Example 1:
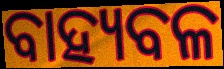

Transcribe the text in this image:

ବାହ୍ୟବଳ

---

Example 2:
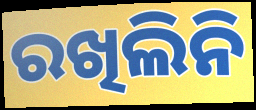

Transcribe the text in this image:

ରଖିଲିନି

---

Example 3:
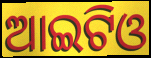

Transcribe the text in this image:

ଆଇଟିଓ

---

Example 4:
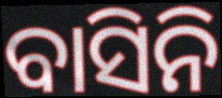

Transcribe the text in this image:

ବାସିନି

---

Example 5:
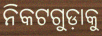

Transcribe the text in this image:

ନିକଟଗୁଡ଼ାକୁ